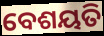
ବେଶୟତି